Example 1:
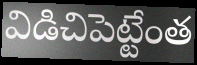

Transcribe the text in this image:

విడిచిపెట్టేంత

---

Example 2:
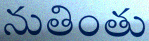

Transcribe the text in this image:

నుతింతు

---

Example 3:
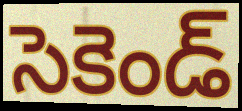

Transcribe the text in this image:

సెకెండ్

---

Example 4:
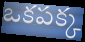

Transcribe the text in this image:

ఒకపక్క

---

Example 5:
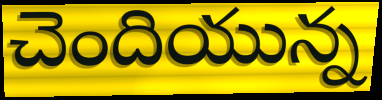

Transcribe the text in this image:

చెందియున్న